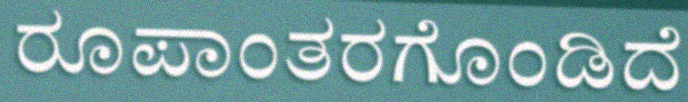
ರೂಪಾಂತರಗೊಂಡಿದೆ